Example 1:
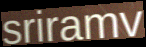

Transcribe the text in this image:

sriramv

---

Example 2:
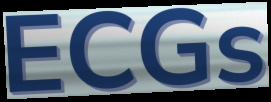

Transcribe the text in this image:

ECGs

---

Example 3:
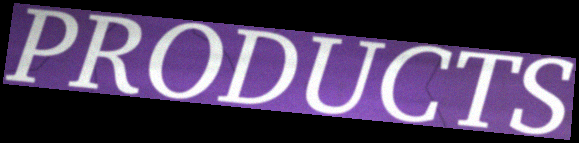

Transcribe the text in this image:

PRODUCTS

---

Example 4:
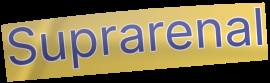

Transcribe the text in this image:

Suprarenal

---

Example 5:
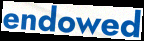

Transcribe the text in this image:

endowed